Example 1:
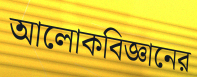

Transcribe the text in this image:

আলোকবিজ্ঞানের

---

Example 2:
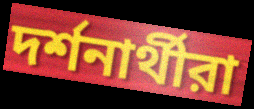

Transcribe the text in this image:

দর্শনার্থীরা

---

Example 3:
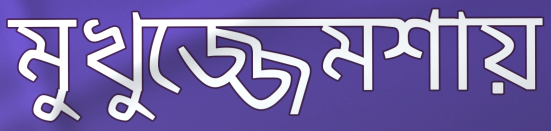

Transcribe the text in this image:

মুখুজ্জেমশায়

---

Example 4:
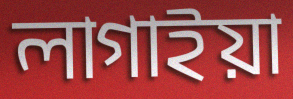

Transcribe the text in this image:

লাগাইয়া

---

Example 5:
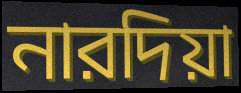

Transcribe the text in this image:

নারদিয়া